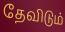
தேவிடும்